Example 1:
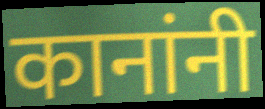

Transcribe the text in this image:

कानांनी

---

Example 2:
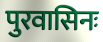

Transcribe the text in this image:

पुरवासिनः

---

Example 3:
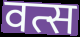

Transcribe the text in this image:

वत्स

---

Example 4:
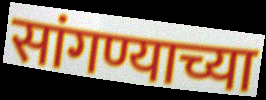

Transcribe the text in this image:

सांगण्याच्या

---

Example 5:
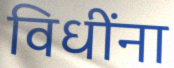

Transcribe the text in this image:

विधींना